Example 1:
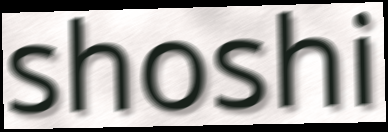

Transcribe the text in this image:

shoshi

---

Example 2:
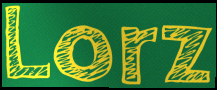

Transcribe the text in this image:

Lorz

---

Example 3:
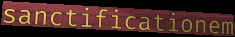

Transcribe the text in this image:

sanctificationem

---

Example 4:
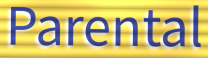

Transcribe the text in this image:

Parental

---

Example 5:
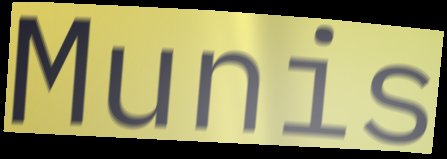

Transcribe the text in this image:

Munis